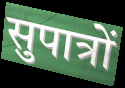
सुपात्रों